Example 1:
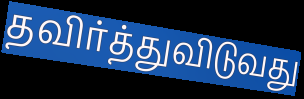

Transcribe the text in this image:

தவிர்த்துவிடுவது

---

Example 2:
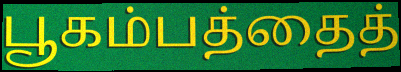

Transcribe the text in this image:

பூகம்பத்தைத்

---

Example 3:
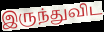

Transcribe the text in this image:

இருந்துவிட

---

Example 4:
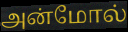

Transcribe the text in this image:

அன்மோல்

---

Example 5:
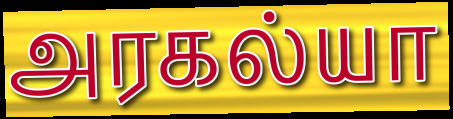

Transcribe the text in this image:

அரகல்யா